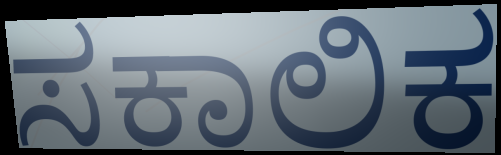
ಸಕಾಲಿಕ